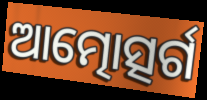
ଆତ୍ମୋତ୍ସର୍ଗ